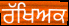
ਰੱਖਿਅਕ